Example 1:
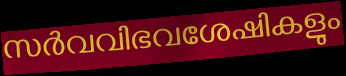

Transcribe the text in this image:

സർവവിഭവശേഷികളും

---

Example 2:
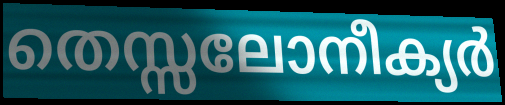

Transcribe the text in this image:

തെസ്സലോനീക്യർ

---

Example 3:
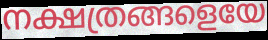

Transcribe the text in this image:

നക്ഷത്രങ്ങളെയേ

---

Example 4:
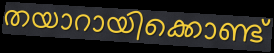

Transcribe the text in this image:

തയാറായിക്കൊണ്ട്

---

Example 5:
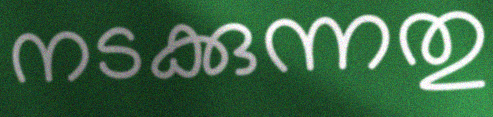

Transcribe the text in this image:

നടക്കുന്നതു